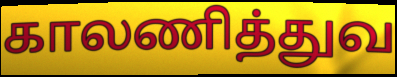
காலணித்துவ